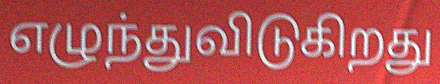
எழுந்துவிடுகிறது